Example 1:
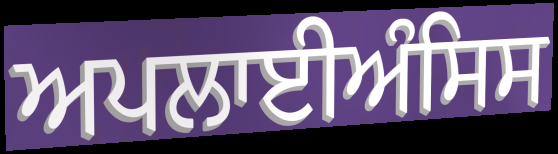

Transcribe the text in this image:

ਅਪਲਾਈਅੰਸਿਸ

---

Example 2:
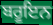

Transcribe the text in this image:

ਬਰੂਇਨ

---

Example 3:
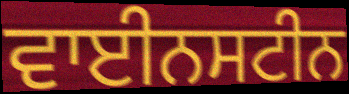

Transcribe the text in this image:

ਵਾਈਨਸਟੀਨ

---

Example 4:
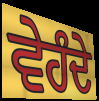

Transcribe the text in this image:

ਵੇਹੰਦੇ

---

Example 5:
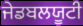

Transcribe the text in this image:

ਜੇਡਬਲਯੂਟੀ